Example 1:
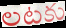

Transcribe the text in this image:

లటకు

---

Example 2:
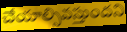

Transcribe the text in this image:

చేయాల్సివస్తుందని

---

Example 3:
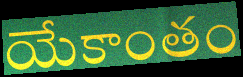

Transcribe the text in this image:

యేకాంతం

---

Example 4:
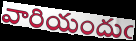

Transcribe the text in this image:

వారియందుఁ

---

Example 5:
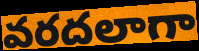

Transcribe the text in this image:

వరదలాగా